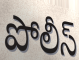
పోలీస్